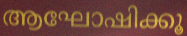
ആഘോഷിക്കൂ